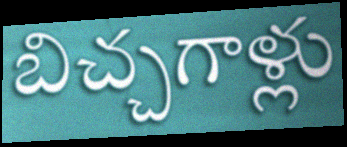
బిచ్చగాళ్లు